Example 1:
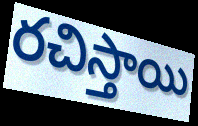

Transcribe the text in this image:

రచిస్తాయి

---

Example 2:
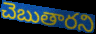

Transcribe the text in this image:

చెబుతారని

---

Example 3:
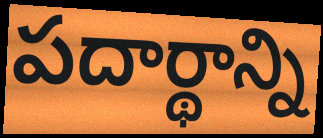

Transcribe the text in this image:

పదార్థాన్ని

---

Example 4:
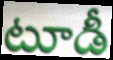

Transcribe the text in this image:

టూడీ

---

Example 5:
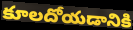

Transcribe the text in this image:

కూలదోయడానికి